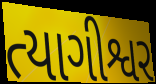
ત્યાગીશ્વર